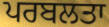
ਪਰਬਲਤਾ